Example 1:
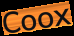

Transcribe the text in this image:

Coox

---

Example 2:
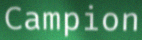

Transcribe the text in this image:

Campion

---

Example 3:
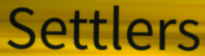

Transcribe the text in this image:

Settlers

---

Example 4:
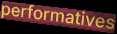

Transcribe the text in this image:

performatives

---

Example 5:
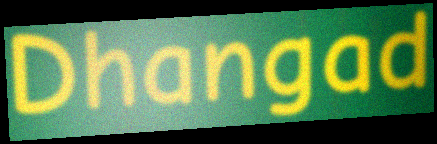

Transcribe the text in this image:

Dhangad